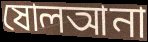
ষোলআনা